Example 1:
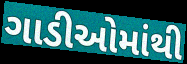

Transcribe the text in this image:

ગાડીઓમાંથી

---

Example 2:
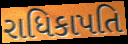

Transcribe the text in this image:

રાધિકાપતિ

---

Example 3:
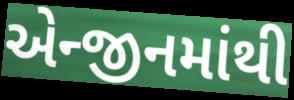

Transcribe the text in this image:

એન્જીનમાંથી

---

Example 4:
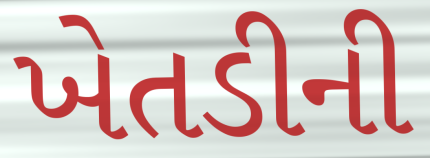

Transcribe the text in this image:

ખેતડીની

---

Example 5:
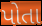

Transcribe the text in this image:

પોતા